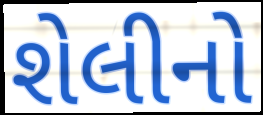
શેલીનો